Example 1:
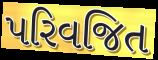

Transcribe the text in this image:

પરિવજિત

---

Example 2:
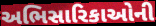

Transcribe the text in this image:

અભિસારિકાઓની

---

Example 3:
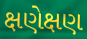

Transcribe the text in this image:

ક્ષણેક્ષણ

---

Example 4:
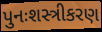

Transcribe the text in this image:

પુનઃશસ્ત્રીકરણ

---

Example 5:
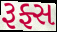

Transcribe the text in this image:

રૂફ્સ